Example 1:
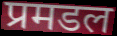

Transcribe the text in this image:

प्रमडल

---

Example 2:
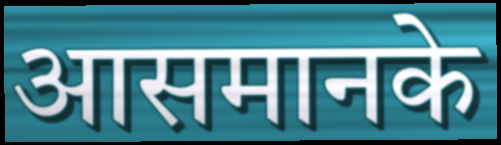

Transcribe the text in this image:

आसमानके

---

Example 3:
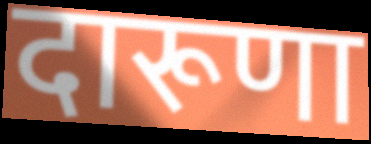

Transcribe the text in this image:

दारूणा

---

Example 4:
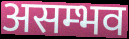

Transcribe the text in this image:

असम्‍भव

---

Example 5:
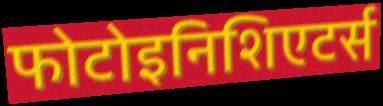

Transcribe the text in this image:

फोटोइनिशिएटर्स